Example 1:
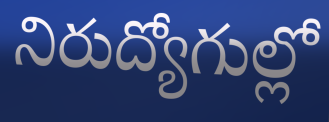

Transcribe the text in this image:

నిరుద్యోగుల్లో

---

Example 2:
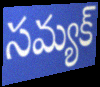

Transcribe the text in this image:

సమ్యక్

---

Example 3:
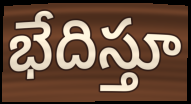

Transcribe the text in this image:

భేదిస్తూ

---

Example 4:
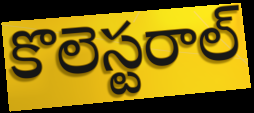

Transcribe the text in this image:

కొలెస్టరాల్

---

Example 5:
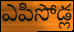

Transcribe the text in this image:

ఎపిసోడ్ల